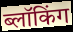
ब्लॉकिंग